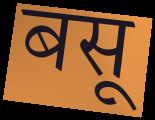
बसू